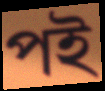
পই